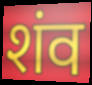
शंव